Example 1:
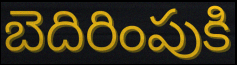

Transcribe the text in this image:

బెదిరింపుకి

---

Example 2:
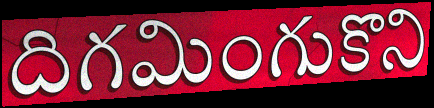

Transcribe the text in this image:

దిగమింగుకొని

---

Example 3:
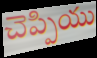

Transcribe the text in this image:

చెప్పియు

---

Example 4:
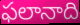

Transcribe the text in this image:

ఫలానాది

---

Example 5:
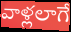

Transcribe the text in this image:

వాళ్లలాగే